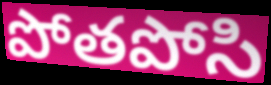
పోతపోసి